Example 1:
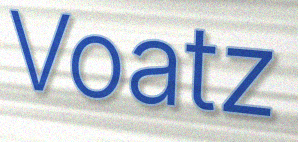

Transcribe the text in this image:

Voatz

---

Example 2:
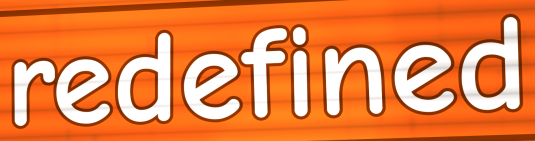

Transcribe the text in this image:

redefined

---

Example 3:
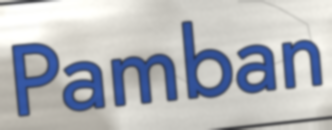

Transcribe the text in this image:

Pamban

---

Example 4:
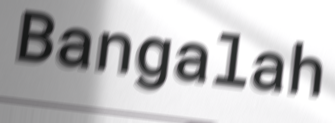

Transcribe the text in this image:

Bangalah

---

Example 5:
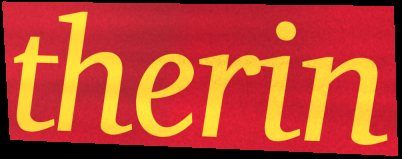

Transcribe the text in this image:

therin